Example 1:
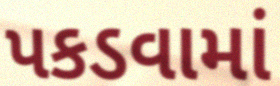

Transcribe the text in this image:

પકડવામાં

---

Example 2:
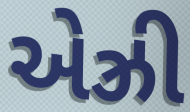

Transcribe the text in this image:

એઝ્રી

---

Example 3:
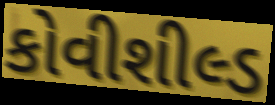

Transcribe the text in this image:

કોવીશીલ્ડ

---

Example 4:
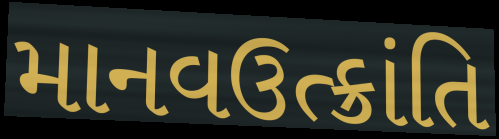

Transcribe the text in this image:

માનવઉત્ક્રાંતિ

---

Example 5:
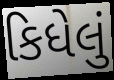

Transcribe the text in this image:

કિધેલું